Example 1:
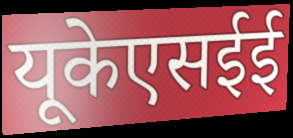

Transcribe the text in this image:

यूकेएसईई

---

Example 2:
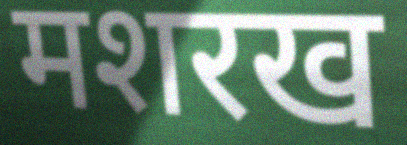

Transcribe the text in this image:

मशरख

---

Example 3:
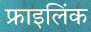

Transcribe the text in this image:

फ्राइलिंक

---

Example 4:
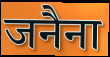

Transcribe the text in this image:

जनैना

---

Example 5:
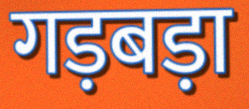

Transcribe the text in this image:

गड़बड़ा